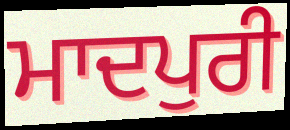
ਮਾਦਪੁਰੀ